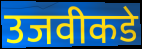
उजवीकडे